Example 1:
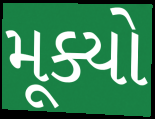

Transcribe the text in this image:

મૂક્યો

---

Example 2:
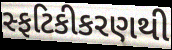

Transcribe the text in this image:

સ્ફટિકીકરણથી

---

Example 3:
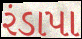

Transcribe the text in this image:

રંડાપા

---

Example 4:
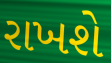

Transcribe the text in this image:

રાખશે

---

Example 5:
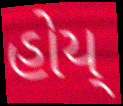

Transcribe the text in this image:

હોય્